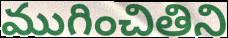
ముగించితిని